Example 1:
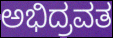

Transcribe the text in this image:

ಅಭಿದ್ರವತ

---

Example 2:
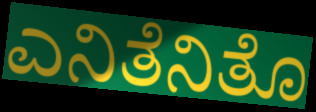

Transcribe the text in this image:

ಎನಿತೆನಿತೊ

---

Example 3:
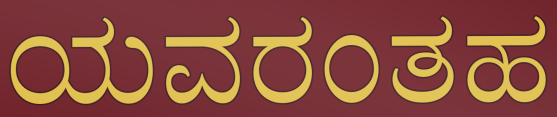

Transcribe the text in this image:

ಯವರಂತಹ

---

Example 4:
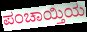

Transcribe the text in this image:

ಪಂಚಾಯ್ತಿಯ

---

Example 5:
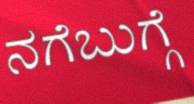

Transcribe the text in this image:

ನಗೆಬುಗ್ಗೆ